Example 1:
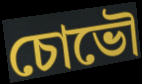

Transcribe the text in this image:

চোভৌ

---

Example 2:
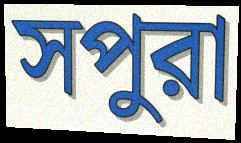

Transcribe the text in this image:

সপুরা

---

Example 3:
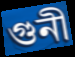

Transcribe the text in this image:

গুনী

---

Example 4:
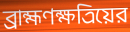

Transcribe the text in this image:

ব্রাহ্মণক্ষত্রিয়ের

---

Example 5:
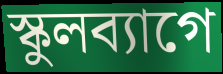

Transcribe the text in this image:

স্কুলব্যাগে